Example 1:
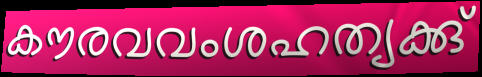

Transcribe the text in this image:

കൗരവവംശഹത്യക്കു്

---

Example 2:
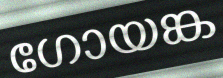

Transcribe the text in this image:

ഗോയങ്ക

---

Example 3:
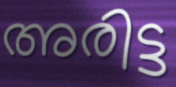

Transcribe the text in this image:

അരിട്ട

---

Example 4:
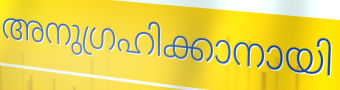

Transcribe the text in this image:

അനുഗ്രഹിക്കാനായി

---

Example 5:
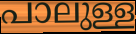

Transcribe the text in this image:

പാലുള്ള